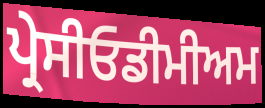
ਪ੍ਰੇਸੀਓਡੀਮੀਅਮ